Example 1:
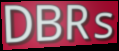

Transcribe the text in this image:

DBRs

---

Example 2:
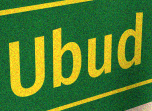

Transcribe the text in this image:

Ubud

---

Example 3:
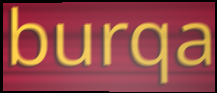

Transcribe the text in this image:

burqa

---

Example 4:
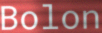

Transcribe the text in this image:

Bolon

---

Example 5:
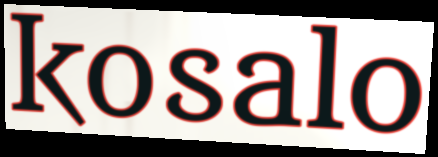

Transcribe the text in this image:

kosalo